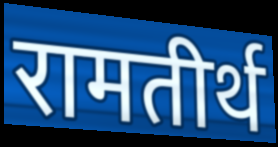
रामतीर्थ